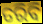
ତରିବି